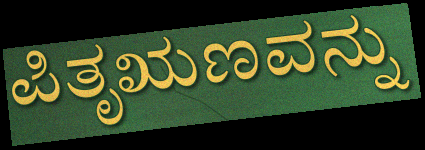
ಪಿತೃಋಣವನ್ನು